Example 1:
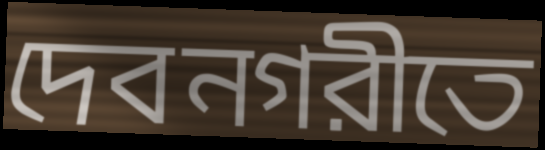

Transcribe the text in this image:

দেবনগরীতে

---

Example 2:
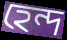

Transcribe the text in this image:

হেন্দ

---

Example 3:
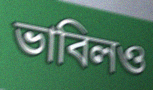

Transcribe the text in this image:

ভাবিলও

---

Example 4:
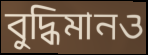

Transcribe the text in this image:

বুদ্ধিমানও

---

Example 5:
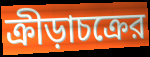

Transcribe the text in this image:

ক্রীড়াচক্রের